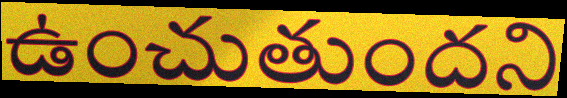
ఉంచుతుందని